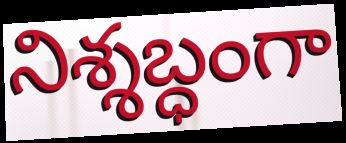
నిశ్శబ్ధంగా